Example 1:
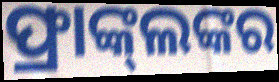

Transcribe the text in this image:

ଫ୍ରାଙ୍କ୍‌ଲଙ୍କର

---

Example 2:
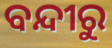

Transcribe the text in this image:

ବନ୍ଦୀରୁ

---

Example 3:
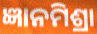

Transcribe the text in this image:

ଜ୍ଞାନମିଶ୍ରା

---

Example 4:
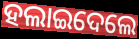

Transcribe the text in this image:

ହଲାଇଦେଲେ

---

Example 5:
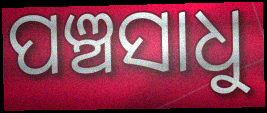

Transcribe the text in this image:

ପଞ୍ଚସାଧୁ